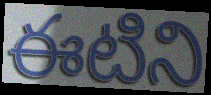
ఈటిని